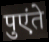
पुएंते